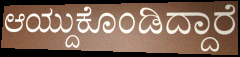
ಆಯ್ದುಕೊಂಡಿದ್ದಾರೆ